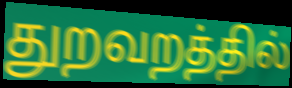
துறவறத்தில்